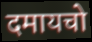
दमायचो